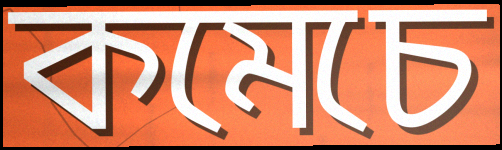
কমেচে